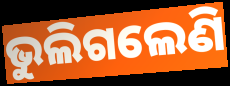
ଭୁଲିଗଲେଣି